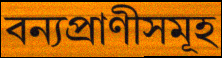
বন্যপ্ৰাণীসমূহ